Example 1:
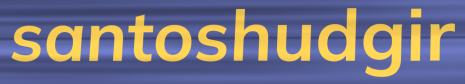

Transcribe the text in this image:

santoshudgir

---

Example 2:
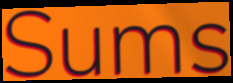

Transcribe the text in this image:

Sums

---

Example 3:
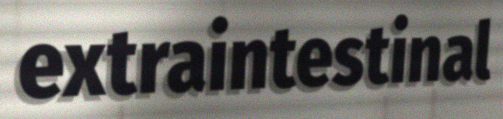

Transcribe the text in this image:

extraintestinal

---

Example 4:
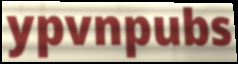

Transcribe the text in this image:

ypvnpubs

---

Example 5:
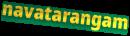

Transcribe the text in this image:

navatarangam